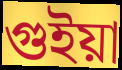
গুইয়া